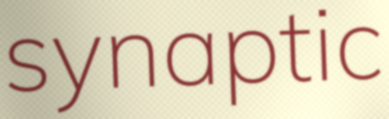
synaptic